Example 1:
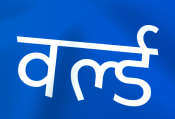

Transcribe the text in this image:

वर्ल्‍ड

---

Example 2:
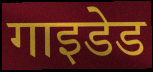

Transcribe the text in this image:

गाइडेड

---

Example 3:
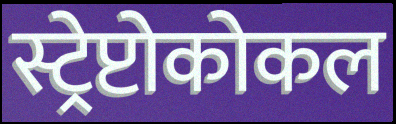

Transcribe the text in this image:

स्ट्रेप्टोकोकल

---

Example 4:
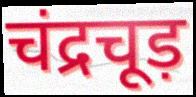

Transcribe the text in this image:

चंद्रचूड़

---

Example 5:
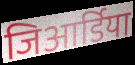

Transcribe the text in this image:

जिआर्डिया